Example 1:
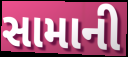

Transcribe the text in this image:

સામાની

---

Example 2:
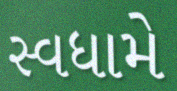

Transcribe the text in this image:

સ્વધામે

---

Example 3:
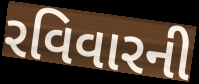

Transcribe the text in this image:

રવિવારની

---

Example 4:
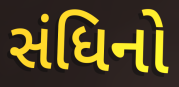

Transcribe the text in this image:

સંધિનો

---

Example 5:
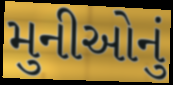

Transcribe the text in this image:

મુનીઓનું